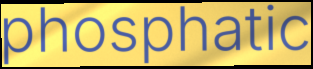
phosphatic